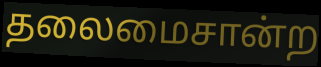
தலைமைசான்ற